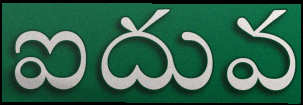
ఐదువ